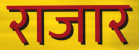
राजार